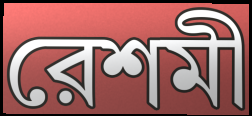
রেশমী